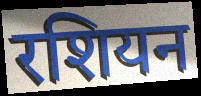
रशियन